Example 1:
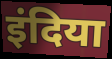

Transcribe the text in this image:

इंदिया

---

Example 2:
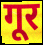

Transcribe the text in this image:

गूर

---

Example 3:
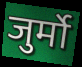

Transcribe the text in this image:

जुर्मो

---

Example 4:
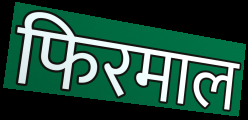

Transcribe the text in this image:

फिरमाल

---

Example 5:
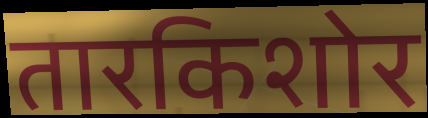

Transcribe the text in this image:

तारकिशोर